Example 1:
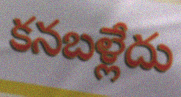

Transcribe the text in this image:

కనబళ్లేదు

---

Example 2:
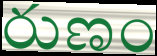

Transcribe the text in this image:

రుణం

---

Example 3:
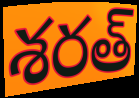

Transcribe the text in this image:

శరత్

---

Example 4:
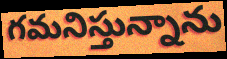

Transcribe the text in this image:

గమనిస్తున్నాను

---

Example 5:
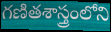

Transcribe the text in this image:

గణితశాస్త్రంలోని